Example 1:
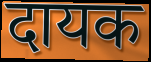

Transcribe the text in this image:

दायक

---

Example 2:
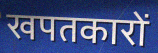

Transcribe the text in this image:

खपतकारों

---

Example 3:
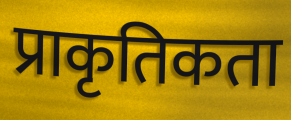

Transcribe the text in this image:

प्राकृतिकता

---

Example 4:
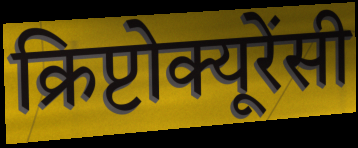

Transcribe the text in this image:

क्रिप्टोक्यूरेंसी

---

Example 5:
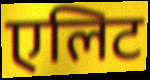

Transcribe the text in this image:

एलिट